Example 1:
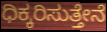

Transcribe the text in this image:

ಧಿಕ್ಕರಿಸುತ್ತೇನೆ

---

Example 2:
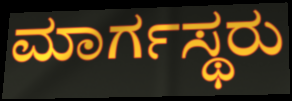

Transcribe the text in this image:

ಮಾರ್ಗಸ್ಥರು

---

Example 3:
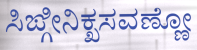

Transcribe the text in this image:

ಸಿಙ್ಗೀನಿಕ್ಖಸವಣ್ಣೋ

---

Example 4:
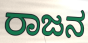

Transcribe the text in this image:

ರಾಜನ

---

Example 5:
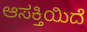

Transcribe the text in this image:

ಆಸಕ್ತಿಯಿದೆ